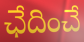
ఛేదించే